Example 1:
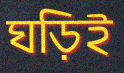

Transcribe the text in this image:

ঘড়িই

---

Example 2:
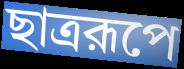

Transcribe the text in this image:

ছাত্ররূপে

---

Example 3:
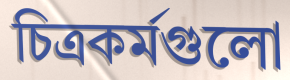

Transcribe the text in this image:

চিত্রকর্মগুলো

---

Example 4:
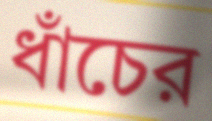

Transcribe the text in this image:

ধাঁচের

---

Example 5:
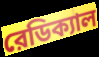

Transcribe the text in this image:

রেডিক্যাল